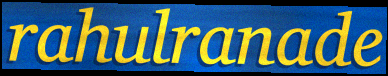
rahulranade